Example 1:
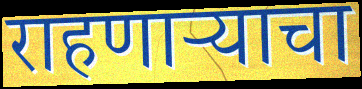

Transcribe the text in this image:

राहणाऱ्याचा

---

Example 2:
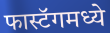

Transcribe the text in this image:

फास्टॅगमध्ये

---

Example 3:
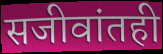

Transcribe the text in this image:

सजीवांतही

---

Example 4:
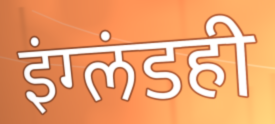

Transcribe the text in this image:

इंग्लंडही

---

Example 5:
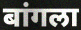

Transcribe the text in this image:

बांगला